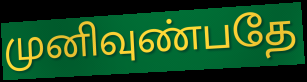
முனிவுண்பதே